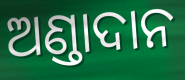
ଅଣ୍ଡାଦାନ